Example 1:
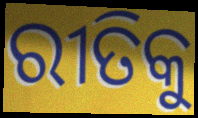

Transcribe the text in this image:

ରୀତିକୁ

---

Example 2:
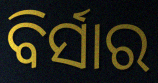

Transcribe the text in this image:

ବିର୍ସାର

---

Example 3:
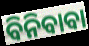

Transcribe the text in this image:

ବିନିବାବା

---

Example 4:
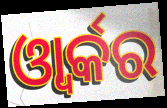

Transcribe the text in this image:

ଓ୍ବାର୍କର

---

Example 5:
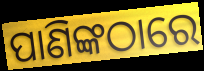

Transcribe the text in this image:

ପାଣିଙ୍କଠାରେ